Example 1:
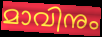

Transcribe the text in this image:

മാവിനും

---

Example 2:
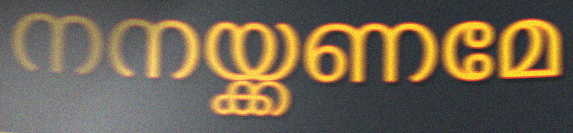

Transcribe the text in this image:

നനയ്ക്കണമേ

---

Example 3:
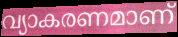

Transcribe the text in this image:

വ്യാകരണമാണ്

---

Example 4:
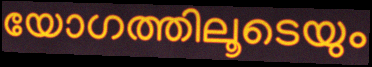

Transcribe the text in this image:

യോഗത്തിലൂടെയും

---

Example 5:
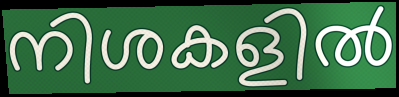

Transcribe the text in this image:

നിശകളിൽ